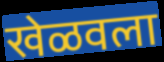
खेळवला